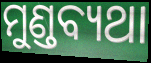
ମୁଣ୍ଡବ୍ୟଥା